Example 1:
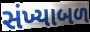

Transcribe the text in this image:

સંખ્યાબળ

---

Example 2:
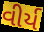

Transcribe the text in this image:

વીર્ય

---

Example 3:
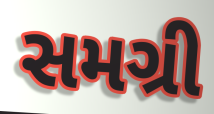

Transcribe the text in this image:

સમગ્રી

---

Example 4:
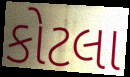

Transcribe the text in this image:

કોટલા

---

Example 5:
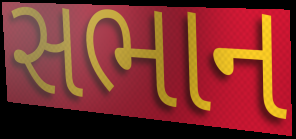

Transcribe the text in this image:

સભાન